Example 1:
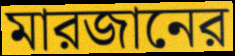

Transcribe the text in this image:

মারজানের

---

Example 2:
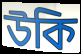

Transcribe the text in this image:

উকি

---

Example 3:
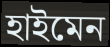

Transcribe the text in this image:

হাইমেন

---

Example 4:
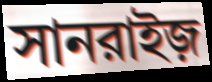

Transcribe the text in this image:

সানরাইজ়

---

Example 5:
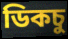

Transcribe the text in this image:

ডিকচু